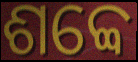
ଶବ୍ବେ